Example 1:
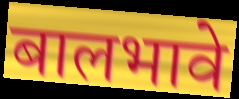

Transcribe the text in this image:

बालभावे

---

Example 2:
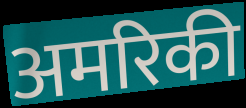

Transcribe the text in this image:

अमरिकी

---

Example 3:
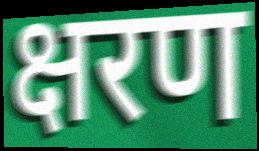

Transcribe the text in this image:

क्षरण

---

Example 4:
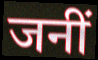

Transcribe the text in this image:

जनीं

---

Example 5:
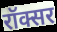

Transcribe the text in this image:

रॉक्सर